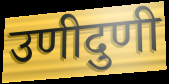
उणीदुणी